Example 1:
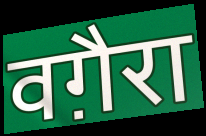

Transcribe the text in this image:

वग़ैरा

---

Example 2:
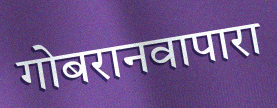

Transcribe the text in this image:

गोबरानवापारा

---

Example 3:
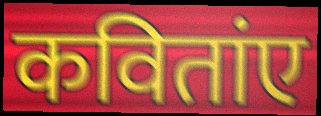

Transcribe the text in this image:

कवितांए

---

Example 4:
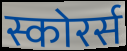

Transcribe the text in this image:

स्कोरर्स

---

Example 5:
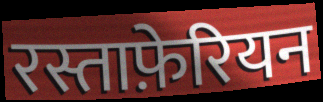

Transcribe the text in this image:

रस्ताफ़ेरियन